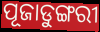
ପୂଜାଡୁଙ୍ଗରୀ